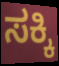
ಸಕ್ಕಿ